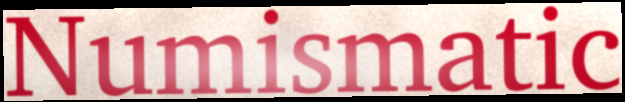
Numismatic